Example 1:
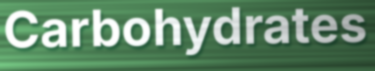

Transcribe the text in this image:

Carbohydrates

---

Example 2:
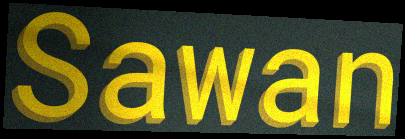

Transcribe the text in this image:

Sawan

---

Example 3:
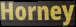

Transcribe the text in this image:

Horney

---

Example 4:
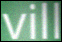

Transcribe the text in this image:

vill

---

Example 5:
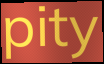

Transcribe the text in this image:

pity